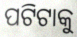
ପଟିଟାକୁ